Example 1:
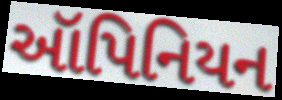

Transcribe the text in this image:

ઑપિનિયન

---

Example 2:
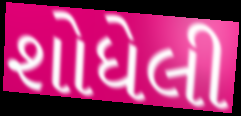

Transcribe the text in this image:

શોધેલી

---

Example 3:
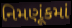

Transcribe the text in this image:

નિમણૂંકમાં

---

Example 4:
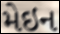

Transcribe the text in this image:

મેઇન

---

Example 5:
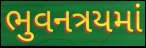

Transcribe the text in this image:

ભુવનત્રયમાં